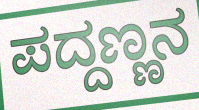
ಪದ್ದಣ್ಣನ